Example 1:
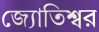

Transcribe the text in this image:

জ্যোতিশ্বর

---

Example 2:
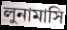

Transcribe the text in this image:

লুনামাসি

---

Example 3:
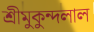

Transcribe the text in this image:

শ্রীমুকুন্দলাল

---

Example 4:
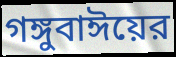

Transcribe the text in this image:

গঙ্গুবাঈয়ের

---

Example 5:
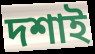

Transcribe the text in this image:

দশাই